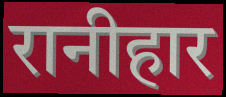
रानीहार